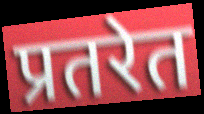
प्रतरेत